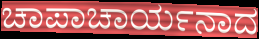
ಚಾಪಾಚಾರ್ಯನಾದ